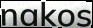
nakos